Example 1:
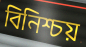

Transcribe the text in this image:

বিনিশ্চয়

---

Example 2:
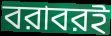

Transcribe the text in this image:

বরাবরই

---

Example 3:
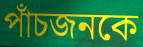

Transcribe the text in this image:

পাঁচজনকে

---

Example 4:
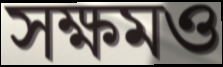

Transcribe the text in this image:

সক্ষমও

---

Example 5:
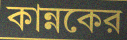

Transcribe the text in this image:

কান্নকের